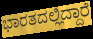
ಭಾರತದಲ್ಲಿದ್ದಾರೆ